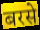
बरसे